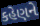
કહેણને